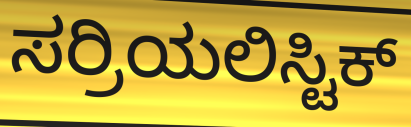
ಸರ್ರಿಯಲಿಸ್ಟಿಕ್